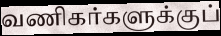
வணிகர்களுக்குப்